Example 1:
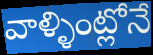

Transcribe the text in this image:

వాళ్ళింట్లోనే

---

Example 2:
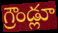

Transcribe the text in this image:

గ్రౌండ్లూ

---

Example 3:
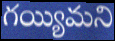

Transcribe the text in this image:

గయ్యిమని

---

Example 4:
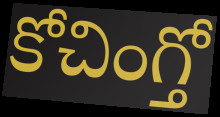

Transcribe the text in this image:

కోచింగ్తో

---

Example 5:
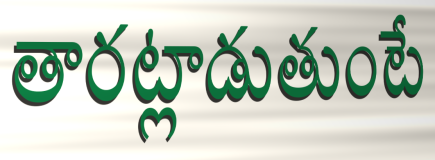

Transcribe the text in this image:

తారట్లాడుతుంటే